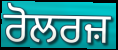
ਰੋਲਰਜ਼